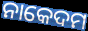
ନାକେଦମ